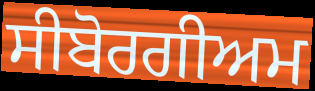
ਸੀਬੋਰਗੀਅਮ